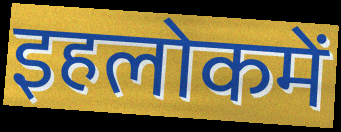
इहलोकमें